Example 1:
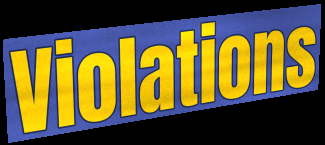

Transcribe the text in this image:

Violations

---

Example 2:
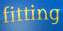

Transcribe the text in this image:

fitting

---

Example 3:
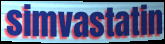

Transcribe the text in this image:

simvastatin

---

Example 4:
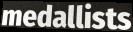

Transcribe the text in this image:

medallists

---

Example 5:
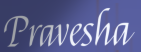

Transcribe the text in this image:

Pravesha